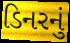
ડિનરનું